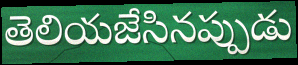
తెలియజేసినప్పుడు